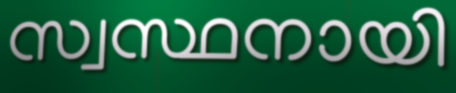
സ്വസ്ഥനായി